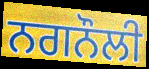
ਨਗਨੌਲੀ